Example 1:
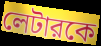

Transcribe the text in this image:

লেটারকে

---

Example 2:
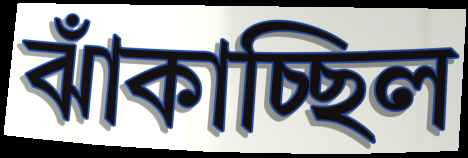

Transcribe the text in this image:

ঝাঁকাচ্ছিল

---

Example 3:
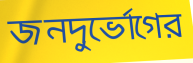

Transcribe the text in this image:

জনদুর্ভোগের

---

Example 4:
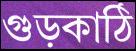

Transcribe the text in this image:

গুড়কাঠি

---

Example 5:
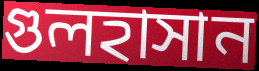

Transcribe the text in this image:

গুলহাসান